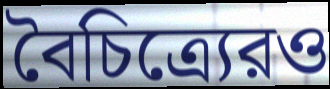
বৈচিত্র্যেরও